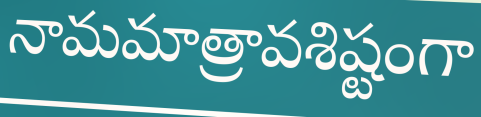
నామమాత్రావశిష్టంగా